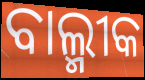
ବାଲ୍ମୀକ